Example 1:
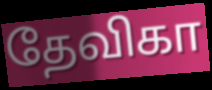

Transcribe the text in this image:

தேவிகா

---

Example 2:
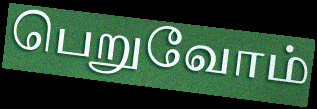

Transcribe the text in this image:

பெறுவோம்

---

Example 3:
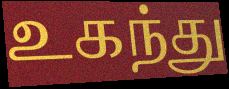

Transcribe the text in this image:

உகந்து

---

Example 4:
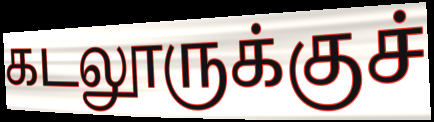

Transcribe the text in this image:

கடலூருக்குச்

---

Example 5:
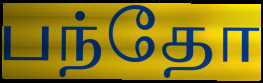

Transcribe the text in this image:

பந்தோ